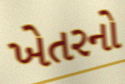
ખેતરનો